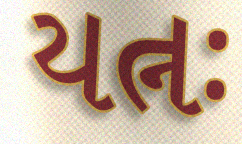
યત્નઃ